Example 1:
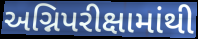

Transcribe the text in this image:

અગ્નિપરીક્ષામાંથી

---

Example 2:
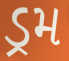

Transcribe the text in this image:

ડ્રમ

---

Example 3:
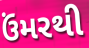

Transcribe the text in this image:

ઉંમરથી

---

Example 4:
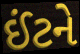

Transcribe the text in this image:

ઈંટને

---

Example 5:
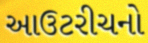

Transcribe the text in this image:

આઉટરીચનો